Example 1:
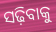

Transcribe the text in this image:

ସଢ଼ିବାକୁ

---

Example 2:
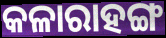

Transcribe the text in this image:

କଳାରାହଙ୍ଗ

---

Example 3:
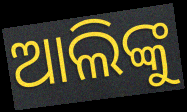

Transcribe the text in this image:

ଆଲିଙ୍କୁ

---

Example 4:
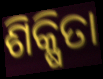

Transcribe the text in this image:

ଶିକ୍ଷିତା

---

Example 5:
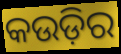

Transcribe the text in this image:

କଉଡ଼ିର